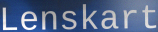
Lenskart